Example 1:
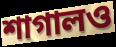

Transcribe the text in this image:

শাগালও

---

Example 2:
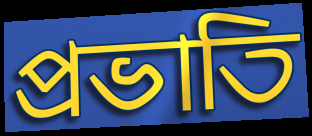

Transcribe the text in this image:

প্রভাতি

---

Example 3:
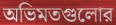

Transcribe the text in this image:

অভিমতগুলোর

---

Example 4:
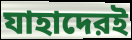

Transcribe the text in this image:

যাহাদেরই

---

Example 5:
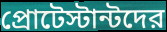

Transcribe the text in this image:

প্রোটেস্টান্টদের